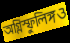
অগ্নিস্ফুলিঙ্গও